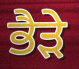
ਭੈਡ਼ੇ